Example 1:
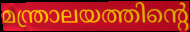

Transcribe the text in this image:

മന്ത്രാലയത്തിന്റെ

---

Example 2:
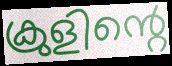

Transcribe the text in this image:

ക്രുളിന്റെ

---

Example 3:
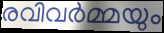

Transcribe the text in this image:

രവിവർമ്മയും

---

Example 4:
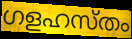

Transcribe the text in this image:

ഗളഹസ്തം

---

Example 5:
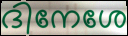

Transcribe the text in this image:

ദിനേശേ